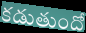
కడుతుందో